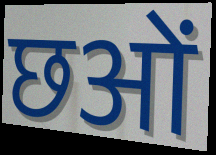
छओं